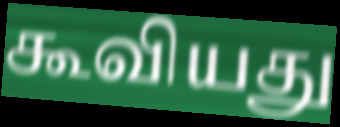
கூவியது